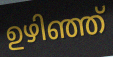
ഉഴിഞ്ഞ്